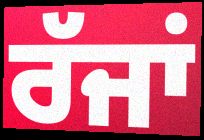
ਰੱਜਾਂ